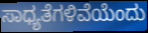
ಸಾಧ್ಯತೆಗಳಿವೆಯೆಂದು